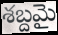
శబ్దమై